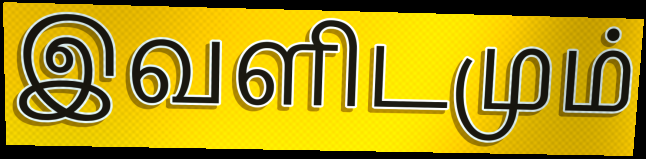
இவளிடமும்